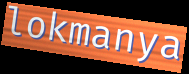
lokmanya